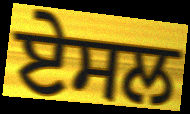
ਏਸਲ